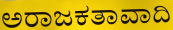
ಅರಾಜಕತಾವಾದಿ